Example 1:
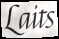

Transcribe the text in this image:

Laits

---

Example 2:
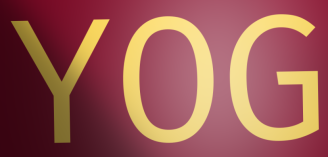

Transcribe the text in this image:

YOG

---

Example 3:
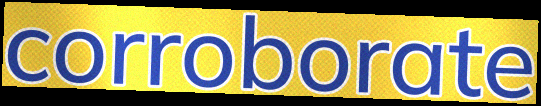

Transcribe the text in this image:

corroborate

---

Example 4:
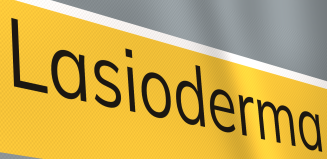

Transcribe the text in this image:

Lasioderma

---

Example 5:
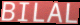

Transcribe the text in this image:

BILAL